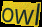
owl